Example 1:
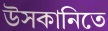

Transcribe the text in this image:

উসকানিতে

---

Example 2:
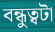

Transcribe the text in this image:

বন্ধুত্বটা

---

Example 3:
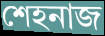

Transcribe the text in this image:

শেহনাজ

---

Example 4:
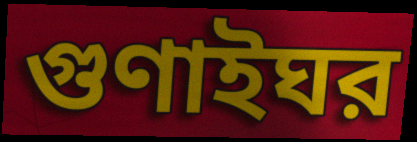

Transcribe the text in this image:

গুণাইঘর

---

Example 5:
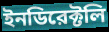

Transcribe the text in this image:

ইনডিরেক্টলি